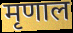
मृणाल